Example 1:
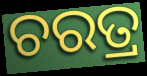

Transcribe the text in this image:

ଚରତ୍ର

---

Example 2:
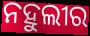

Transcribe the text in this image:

ନହୁଲୀର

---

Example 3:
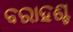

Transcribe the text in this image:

ବରାହଶ୍ଚ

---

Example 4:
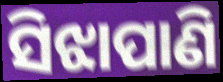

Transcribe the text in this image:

ସିଝାପାଣି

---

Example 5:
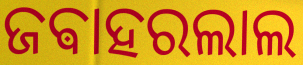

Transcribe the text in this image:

ଜଵାହରଲାଲ